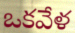
ఒకవేళ